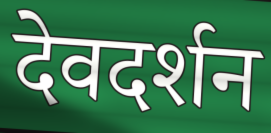
देवदर्शन